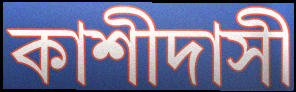
কাশীদাসী